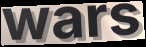
wars